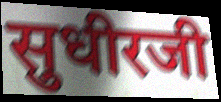
सुधीरजी